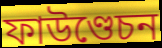
ফাউণ্ডেচন